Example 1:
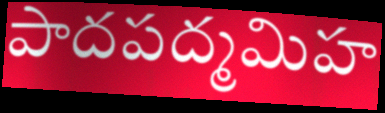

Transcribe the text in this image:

పాదపద్మమిహ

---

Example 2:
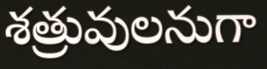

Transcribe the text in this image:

శత్రువులనుగా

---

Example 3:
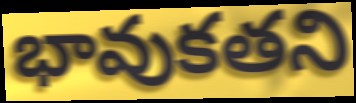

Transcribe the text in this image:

భావుకతని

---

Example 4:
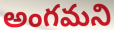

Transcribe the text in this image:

అంగమని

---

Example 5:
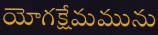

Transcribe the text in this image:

యోగక్షేమమును